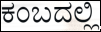
ಕಂಬದಲ್ಲಿ